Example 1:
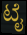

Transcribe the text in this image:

ಟೈ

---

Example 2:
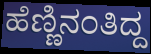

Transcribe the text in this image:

ಹೆಣ್ಣಿನಂತಿದ್ದ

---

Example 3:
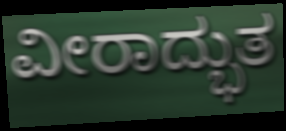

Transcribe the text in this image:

ವೀರಾದ್ಭುತ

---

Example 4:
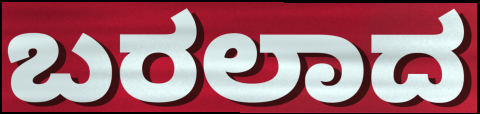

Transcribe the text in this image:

ಬರಲಾದ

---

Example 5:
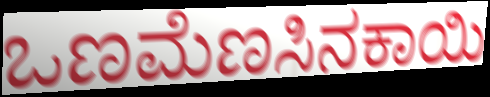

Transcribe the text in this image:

ಒಣಮೆಣಸಿನಕಾಯಿ